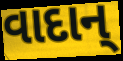
વાદાન્